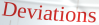
Deviations